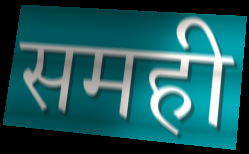
समही